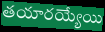
తయారయ్యేయి